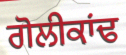
ਗੋਲੀਕਾਂਢ